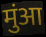
मुंआ